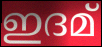
ഇദമ്